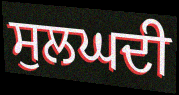
ਸੁਲਘਦੀ